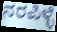
ನರಪಿಳ್ಳೆ